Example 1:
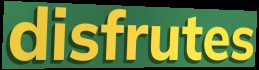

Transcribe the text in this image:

disfrutes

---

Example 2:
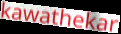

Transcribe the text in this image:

kawathekar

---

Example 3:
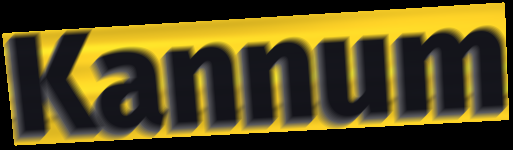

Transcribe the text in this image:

Kannum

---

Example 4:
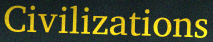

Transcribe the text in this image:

Civilizations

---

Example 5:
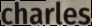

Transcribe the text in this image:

charles